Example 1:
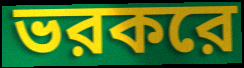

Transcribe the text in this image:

ভরকরে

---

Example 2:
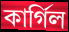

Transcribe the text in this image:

কার্গিল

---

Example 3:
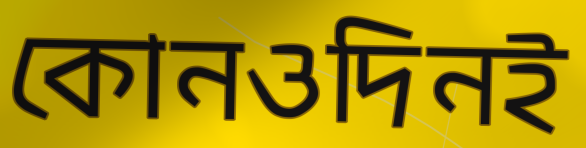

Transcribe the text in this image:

কোনওদিনই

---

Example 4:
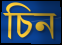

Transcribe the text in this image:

চিন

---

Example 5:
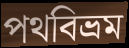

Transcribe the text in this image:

পথবিভ্রম